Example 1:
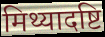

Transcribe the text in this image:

मिथ्यादष्टि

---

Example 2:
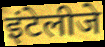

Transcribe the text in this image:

इंटेलीजे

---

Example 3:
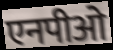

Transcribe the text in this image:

एनपीओ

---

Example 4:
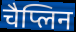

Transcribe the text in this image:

चैप्लिन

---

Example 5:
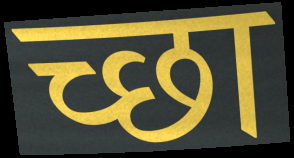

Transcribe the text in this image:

च्छा